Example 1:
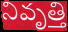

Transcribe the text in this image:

నివృత్తి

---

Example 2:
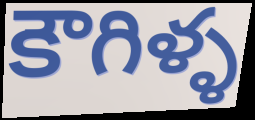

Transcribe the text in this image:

కౌగిళ్ళ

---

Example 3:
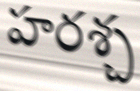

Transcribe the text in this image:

హరశ్చ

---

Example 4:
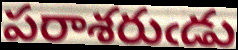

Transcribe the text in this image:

పరాశరుఁడు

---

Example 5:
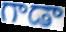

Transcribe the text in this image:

గాడా